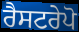
ਰੈਸਟਰੇਪੋ